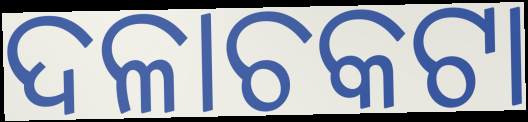
ଦଳାଚକଟା